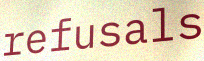
refusals